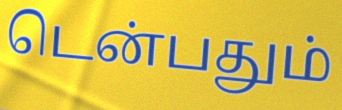
டென்பதும்